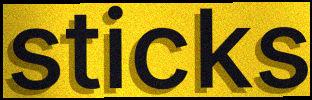
sticks